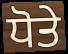
ਧੋਤੇ